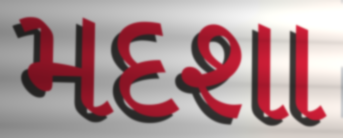
મદશા